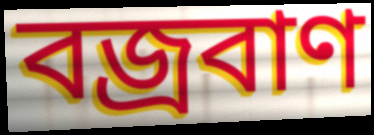
বজ্রবাণ